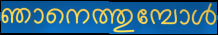
ഞാനെത്തുമ്പോൾ